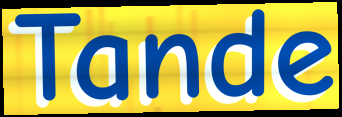
Tande